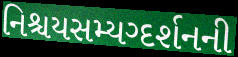
નિશ્ચયસમ્યગ્દર્શનની